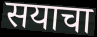
सयाचा